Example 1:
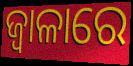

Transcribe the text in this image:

ଜ୍ୱାଳାରେ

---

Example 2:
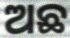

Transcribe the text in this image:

ଅଛ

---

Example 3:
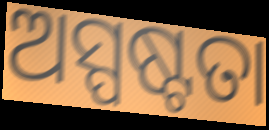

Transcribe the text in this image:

ଅସ୍ପଷ୍ଟତା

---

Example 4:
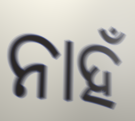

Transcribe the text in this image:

ନାହଁ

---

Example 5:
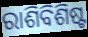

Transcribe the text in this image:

ରାଶିବିଶିଷ୍ଟ